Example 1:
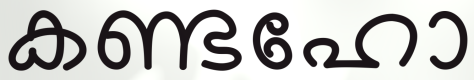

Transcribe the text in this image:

കണ്ടഹോ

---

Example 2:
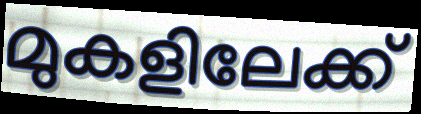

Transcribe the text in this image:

മുകളിലേക്ക്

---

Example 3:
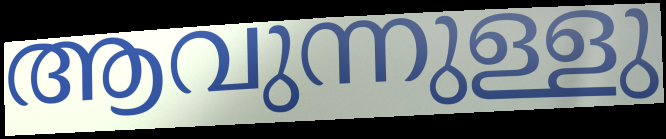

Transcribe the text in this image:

ആവുന്നുള്ളു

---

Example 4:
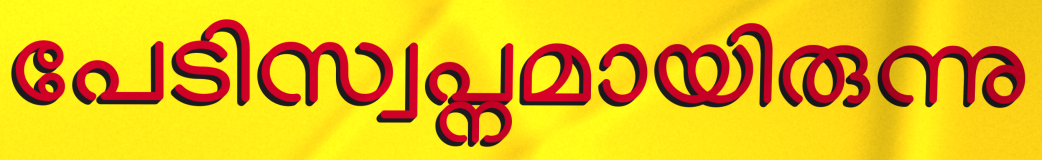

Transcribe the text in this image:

പേടിസ്വപ്നമായിരുന്നു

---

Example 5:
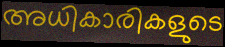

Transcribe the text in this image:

അധികാരികളുടെ